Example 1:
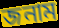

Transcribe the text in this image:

জনাম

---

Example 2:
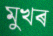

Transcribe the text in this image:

মুখৰ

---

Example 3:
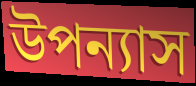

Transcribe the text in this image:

উপন্যাস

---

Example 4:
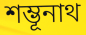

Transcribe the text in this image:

শম্ভূনাথ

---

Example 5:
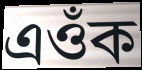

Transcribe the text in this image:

এওঁক